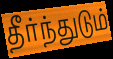
தீர்ந்துடும்